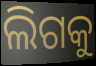
ଲିଗକୁ